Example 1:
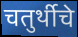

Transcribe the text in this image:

चतुर्थीचे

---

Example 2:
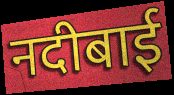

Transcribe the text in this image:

नदीबाई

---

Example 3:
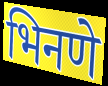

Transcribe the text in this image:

भिनणे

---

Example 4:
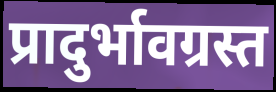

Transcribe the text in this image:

प्रादुर्भावग्रस्त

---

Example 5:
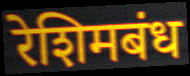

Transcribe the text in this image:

रेशिमबंध